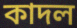
কাদল